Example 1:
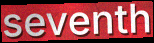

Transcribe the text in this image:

seventh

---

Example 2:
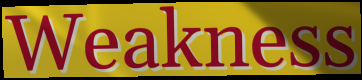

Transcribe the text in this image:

Weakness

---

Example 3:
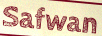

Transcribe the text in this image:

Safwan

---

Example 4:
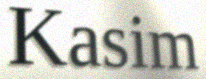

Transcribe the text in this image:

Kasim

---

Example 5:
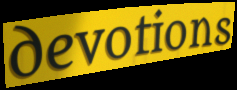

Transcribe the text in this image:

devotions